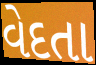
વેદતા